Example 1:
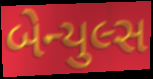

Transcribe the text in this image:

બેન્યુલ્સ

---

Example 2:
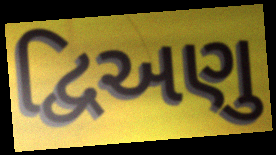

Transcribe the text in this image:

દ્વિઅણુ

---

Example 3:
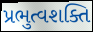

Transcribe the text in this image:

પ્રભુત્વશક્તિ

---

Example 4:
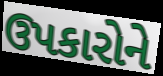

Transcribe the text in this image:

ઉપકારોને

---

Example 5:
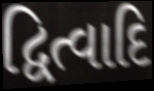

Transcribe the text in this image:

દ્વિત્વાદિ